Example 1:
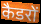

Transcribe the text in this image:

कैडरों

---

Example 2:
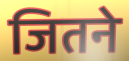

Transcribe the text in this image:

जितने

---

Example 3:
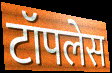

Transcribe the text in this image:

टॉपलेस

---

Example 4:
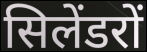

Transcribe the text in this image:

सिलेंडरों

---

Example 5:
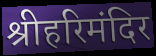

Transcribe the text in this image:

श्रीहरिमंदिर